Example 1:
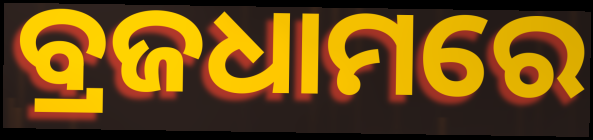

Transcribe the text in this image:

ବ୍ରଜଧାମରେ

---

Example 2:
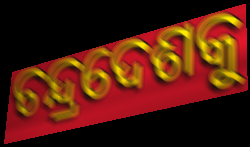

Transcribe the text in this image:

ଚନ୍ଦ୍ରଦେଶକୁ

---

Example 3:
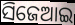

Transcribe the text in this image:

ସିଜେଆଇ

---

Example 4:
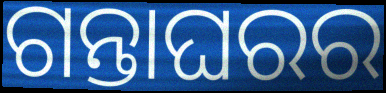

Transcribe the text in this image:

ଗନ୍ତାଘରର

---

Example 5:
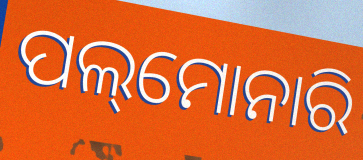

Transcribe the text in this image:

ପଲ୍‌ମୋନାରି